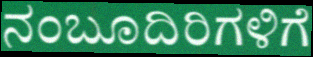
ನಂಬೂದಿರಿಗಳಿಗೆ